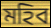
মহিব